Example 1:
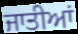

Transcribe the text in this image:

ਜਾਤੀਆਂ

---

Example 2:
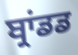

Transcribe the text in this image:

ਬ੍ਰਾਂਡਡ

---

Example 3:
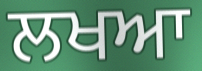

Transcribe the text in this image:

ਲਖਆ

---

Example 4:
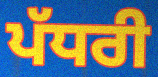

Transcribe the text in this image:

ਪੱਧਰੀ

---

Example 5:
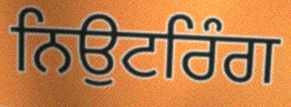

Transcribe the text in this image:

ਨਿਉਟਰਿੰਗ